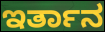
ಇರ್ತಾನ